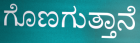
ಗೊಣಗುತ್ತಾನೆ